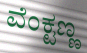
ವೆಂಕ್ಟಣ್ಣ